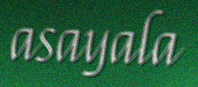
asayala